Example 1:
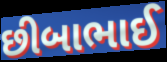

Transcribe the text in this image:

છીબાભાઈ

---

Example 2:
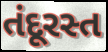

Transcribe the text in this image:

તંદૂરસ્ત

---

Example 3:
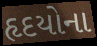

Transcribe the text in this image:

હૃદયોના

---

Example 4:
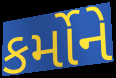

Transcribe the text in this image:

કર્મોને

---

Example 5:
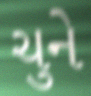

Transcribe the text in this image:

ચુને